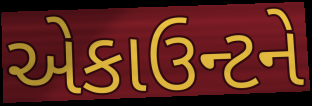
એકાઉન્ટને